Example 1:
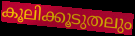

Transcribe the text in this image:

കൂലിക്കൂടുതലും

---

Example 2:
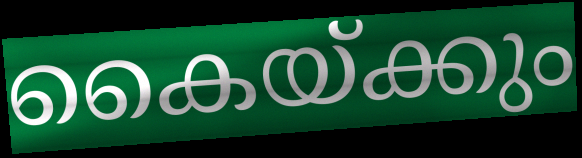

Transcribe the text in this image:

കൈയ്ക്കും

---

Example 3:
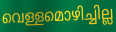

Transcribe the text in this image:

വെള്ളമൊഴിച്ചില്ല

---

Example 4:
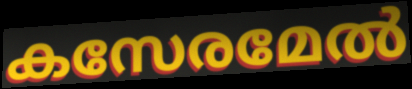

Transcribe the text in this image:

കസേരമേൽ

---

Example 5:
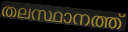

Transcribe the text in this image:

തലസ്ഥാനത്ത്